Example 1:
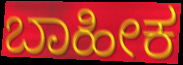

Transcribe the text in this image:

ಬಾಹೀಕ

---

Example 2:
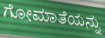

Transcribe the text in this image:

ಗೋಮಾತೆಯನ್ನು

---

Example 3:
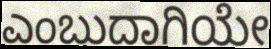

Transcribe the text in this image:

ಎಂಬುದಾಗಿಯೇ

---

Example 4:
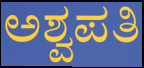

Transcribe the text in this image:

ಅಶ್ವಪತಿ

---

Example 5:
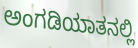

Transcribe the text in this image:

ಅಂಗಡಿಯಾತನಲ್ಲಿ